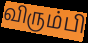
விரும்பி